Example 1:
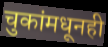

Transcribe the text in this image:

चुकांमधूनही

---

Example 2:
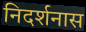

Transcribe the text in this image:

निदर्शनास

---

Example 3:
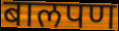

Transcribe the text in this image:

बालपण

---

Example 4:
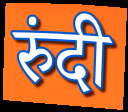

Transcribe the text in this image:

रुंदी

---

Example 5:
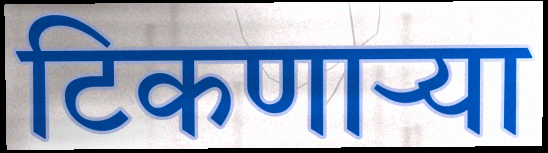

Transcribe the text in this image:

टिकणाऱ्या